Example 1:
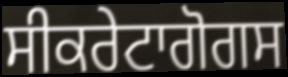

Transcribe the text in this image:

ਸੀਕਰੇਟਾਗੋਗਸ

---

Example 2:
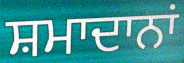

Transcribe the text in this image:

ਸ਼ਮਾਦਾਨਾਂ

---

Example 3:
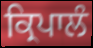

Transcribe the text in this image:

ਕ੍ਰਿਪਾਲੰ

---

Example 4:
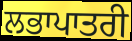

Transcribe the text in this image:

ਲਭਾਪਾਤਰੀ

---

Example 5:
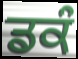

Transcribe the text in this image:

ਡਕੰ